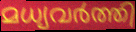
മധ്യവർത്തി